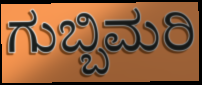
ಗುಬ್ಬಿಮರಿ